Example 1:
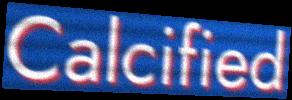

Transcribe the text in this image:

Calcified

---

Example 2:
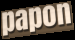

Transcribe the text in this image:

papon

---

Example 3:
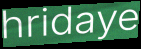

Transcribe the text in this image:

hridaye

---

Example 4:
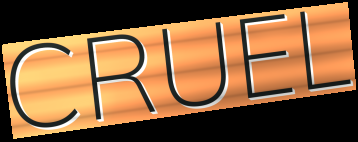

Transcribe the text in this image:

CRUEL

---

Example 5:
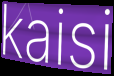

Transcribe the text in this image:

kaisi